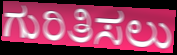
ಗುರಿತಿಸಲು